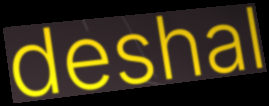
deshal